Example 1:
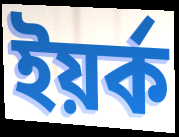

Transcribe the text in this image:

ইয়র্ক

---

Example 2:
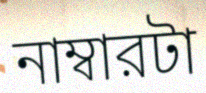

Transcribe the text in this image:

নাম্বারটা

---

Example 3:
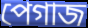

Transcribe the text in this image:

পেগাজ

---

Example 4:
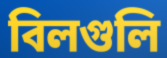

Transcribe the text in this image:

বিলগুলি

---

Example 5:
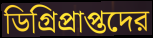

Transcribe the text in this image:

ডিগ্রিপ্রাপ্তদের